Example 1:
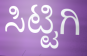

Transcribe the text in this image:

ಸಿಟ್ಟಿಗಿ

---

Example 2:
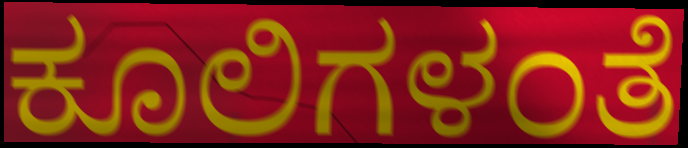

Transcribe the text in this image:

ಕೂಲಿಗಳಂತೆ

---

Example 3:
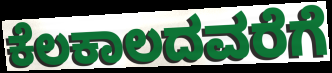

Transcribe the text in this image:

ಕೆಲಕಾಲದವರೆಗೆ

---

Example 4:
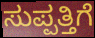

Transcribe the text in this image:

ಸುಪ್ಪತ್ತಿಗೆ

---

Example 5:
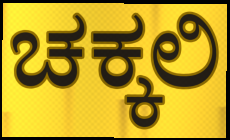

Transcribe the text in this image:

ಚಕ್ಕಲಿ